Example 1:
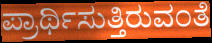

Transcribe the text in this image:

ಪ್ರಾರ್ಥಿಸುತ್ತಿರುವಂತೆ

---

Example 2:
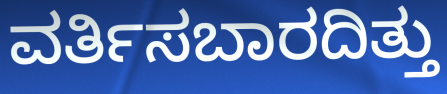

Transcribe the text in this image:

ವರ್ತಿಸಬಾರದಿತ್ತು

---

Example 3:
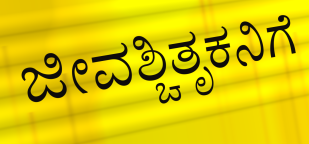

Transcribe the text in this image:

ಜೀವಶ್ಚಿತೃಕನಿಗೆ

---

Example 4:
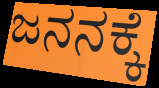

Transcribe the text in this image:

ಜನನಕ್ಕೆ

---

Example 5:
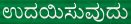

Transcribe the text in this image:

ಉದಯಿಸುವುದು